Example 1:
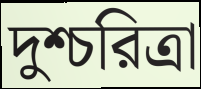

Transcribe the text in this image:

দুশ্চরিত্রা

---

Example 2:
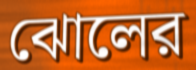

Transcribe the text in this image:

ঝোলের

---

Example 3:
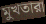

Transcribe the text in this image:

মুখতারা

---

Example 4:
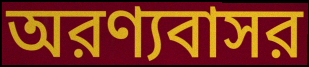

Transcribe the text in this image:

অরণ্যবাসর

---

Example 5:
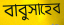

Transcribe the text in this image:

বাবুসাহেব